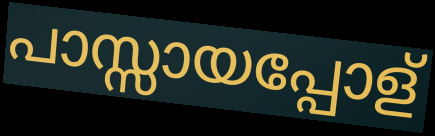
പാസ്സായപ്പോള്